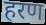
हरण